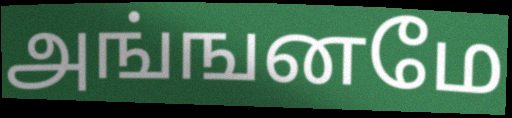
அங்ஙனமே